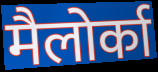
मैलोर्का